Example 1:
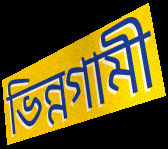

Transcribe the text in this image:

ভিন্নগামী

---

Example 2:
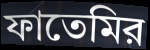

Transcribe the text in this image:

ফাতেমির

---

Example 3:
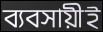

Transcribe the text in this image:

ব্যবসায়ীই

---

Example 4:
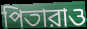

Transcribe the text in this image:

পিতারাও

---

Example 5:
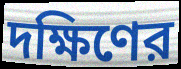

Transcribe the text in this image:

দক্ষিণের